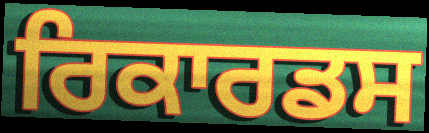
ਰਿਕਾਰਡਸ